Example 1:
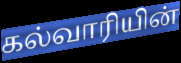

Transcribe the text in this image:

கல்வாரியின்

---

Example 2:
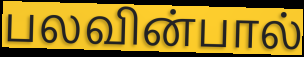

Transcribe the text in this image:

பலவின்பால்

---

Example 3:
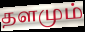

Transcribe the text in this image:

தளமும்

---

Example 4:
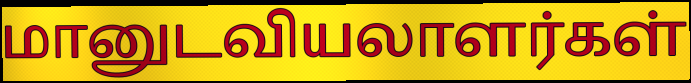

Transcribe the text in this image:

மானுடவியலாளர்கள்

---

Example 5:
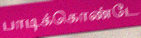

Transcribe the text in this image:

பாடிக்கொண்டே